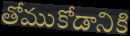
తోముకోడానికి